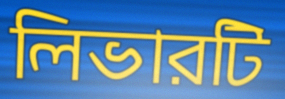
লিভারটি